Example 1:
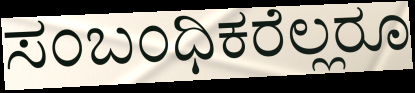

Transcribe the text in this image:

ಸಂಬಂಧಿಕರೆಲ್ಲರೂ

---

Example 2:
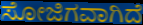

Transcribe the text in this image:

ಸೋಜಿಗವಾಗಿದೆ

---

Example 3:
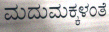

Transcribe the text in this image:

ಮದುಮಕ್ಕಳಂತೆ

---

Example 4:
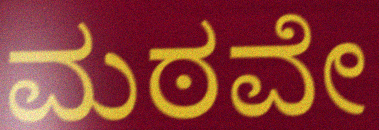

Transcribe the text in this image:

ಮಠವೇ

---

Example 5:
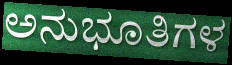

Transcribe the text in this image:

ಅನುಭೂತಿಗಳ